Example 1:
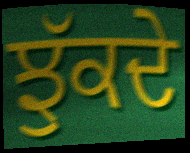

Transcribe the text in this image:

ਝੁੱਕਦੇ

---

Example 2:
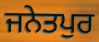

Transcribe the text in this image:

ਜਨੇਤਪੁਰ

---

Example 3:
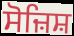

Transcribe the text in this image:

ਸੋਜ਼ਿਸ਼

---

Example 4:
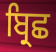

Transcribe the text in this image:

ਬ੍ਰਿਛ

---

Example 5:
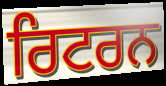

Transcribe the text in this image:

ਰਿਟਰਨ